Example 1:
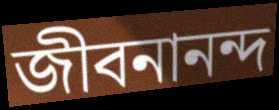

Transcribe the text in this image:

জীবনানন্দ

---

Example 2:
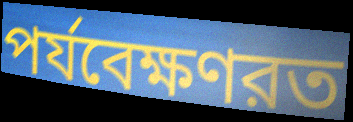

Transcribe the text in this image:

পর্যবেক্ষণরত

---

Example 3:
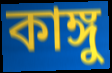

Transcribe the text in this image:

কাঙ্গু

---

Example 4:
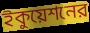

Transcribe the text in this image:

ইকুয়েশনের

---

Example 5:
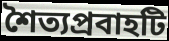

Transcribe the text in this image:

শৈত্যপ্রবাহটি